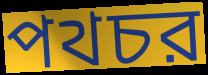
পথচর